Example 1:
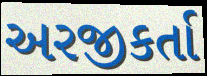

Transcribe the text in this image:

અરજીકર્તા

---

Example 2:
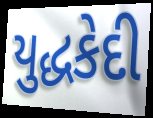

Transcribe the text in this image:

યુદ્ધકેદી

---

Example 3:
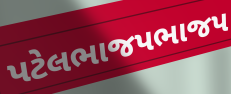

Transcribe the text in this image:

પટેલભાજપભાજપ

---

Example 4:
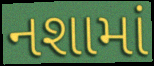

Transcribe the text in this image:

નશામાં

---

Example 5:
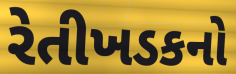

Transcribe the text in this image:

રેતીખડકનો